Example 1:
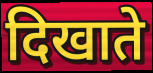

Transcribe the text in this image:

दिखाते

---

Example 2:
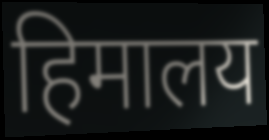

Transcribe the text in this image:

हिमालय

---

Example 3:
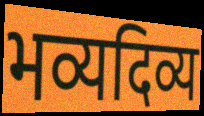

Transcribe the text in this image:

भव्यदिव्य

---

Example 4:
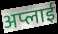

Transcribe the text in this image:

अप्लाई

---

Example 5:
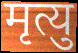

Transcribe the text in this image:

मृत्यु